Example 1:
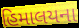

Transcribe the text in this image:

હિમાલયના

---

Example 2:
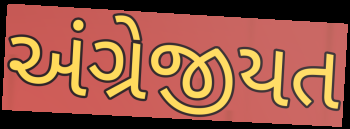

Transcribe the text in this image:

અંગ્રેજીયત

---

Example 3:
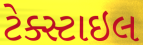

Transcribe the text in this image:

ટેક્સ્ટાઇલ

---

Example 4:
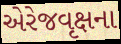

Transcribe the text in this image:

એરેજવૃક્ષના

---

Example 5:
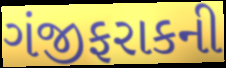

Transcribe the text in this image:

ગંજીફરાકની